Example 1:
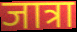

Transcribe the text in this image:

जात्रा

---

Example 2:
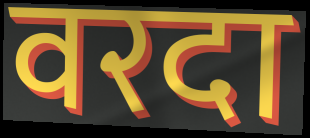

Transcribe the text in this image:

वरदा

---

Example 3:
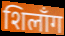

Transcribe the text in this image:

शिलाँग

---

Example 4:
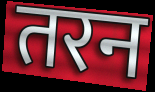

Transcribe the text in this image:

तरन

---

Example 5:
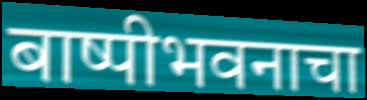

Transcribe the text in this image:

बाष्पीभवनाचा